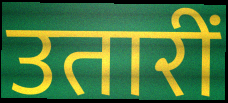
उतारीं